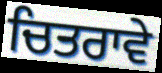
ਚਿਤਰਾਵੇ